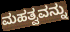
ಮಹತ್ವವನ್ನು